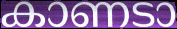
കാണടാ